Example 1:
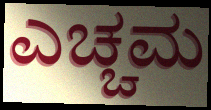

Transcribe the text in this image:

ಎಚ್ಚಮ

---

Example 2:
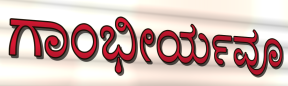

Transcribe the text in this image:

ಗಾಂಭೀರ್ಯವೂ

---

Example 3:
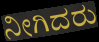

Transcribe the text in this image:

ನೀಗಿದರು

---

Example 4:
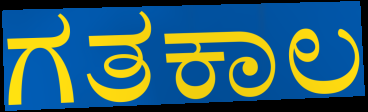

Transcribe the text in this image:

ಗತಕಾಲ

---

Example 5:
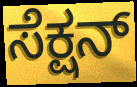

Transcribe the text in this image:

ಸೆಕ್ಷನ್